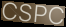
CSPC